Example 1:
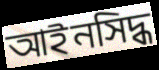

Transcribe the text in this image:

আইনসিদ্ধ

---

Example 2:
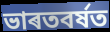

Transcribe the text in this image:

ভাৰতবৰ্ষত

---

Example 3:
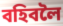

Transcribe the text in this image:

বহিবলৈ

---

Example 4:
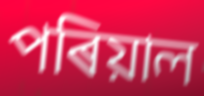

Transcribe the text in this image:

পৰিয়াল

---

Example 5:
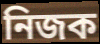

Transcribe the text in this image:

নিজক